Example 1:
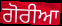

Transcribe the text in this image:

ਗੋਰੀਆ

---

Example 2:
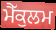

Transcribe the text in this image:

ਮੈੱਕੁਲਮ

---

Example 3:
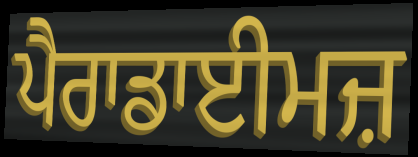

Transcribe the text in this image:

ਪੈਰਾਡਾਈਮਜ਼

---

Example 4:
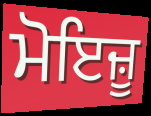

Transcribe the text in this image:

ਮੋਇਜ਼ੂ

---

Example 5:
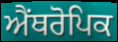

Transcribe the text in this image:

ਐਂਥਰੋਪਿਕ